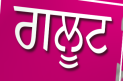
ਗਲੂਟ